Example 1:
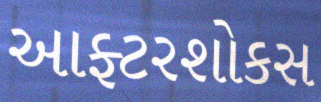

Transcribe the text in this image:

આફ્ટરશોકસ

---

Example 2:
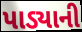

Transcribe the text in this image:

પાડ્યાની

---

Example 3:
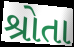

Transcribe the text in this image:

શ્રોતા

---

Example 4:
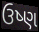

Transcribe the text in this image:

ઉષ્ણ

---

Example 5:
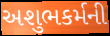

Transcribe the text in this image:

અશુભકર્મની